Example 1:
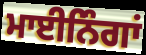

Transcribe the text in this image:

ਮਾਈਨਿੰਗਾਂ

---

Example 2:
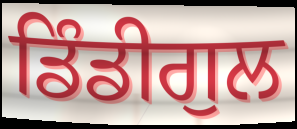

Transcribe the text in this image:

ਡਿੰਡੀਗੁਲ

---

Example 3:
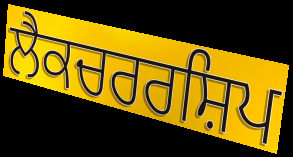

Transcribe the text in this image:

ਲੈਕਚਰਰਸ਼ਿਪ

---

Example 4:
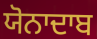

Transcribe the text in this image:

ਯੋਨਾਦਾਬ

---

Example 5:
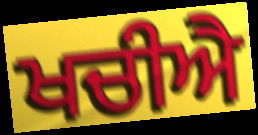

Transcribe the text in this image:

ਖਚੀਐ